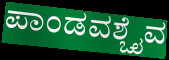
ಪಾಂಡವಶ್ಚೈವ